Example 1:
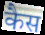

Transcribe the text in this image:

कैस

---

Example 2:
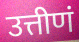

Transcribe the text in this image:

उत्तीणं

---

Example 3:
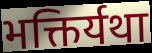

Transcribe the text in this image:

भक्तिर्यथा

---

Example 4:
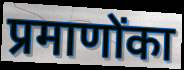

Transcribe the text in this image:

प्रमाणोंका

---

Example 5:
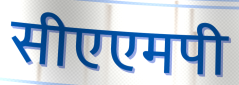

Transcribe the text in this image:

सीएएमपी